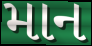
માન